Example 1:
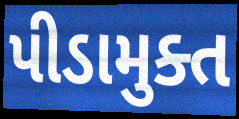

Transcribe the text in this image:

પીડામુક્ત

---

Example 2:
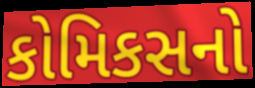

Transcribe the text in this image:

કોમિકસનો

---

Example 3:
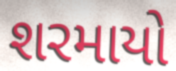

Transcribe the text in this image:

શરમાયો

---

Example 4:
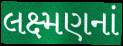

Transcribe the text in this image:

લક્ષ્મણનાં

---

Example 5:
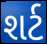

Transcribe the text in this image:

શર્ટ